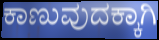
ಕಾಣುವುದಕ್ಕಾಗಿ